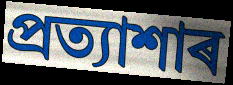
প্ৰত্যাশাৰ